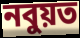
নবুয়ত